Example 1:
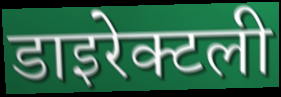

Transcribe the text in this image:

डाइरेक्टली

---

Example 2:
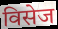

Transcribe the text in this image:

विसेज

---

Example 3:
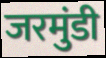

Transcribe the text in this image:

जरमुंडी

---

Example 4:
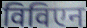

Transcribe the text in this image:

विविएन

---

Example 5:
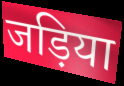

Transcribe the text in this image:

जड़िया